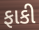
ફાકી